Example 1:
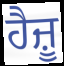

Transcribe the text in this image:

ਹੈਜ਼ੂ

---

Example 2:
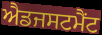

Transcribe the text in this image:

ਐਡਜਸਟਮੈਂਟ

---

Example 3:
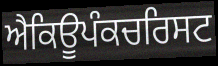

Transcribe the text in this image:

ਐਕਿਊਪੰਕਚਰਿਸਟ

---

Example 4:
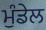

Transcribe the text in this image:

ਮੁੰਡੇਲ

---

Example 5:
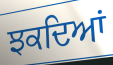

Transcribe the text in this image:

ਝਕਦਿਆਂ